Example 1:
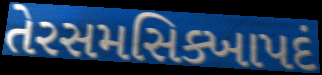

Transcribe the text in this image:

તેરસમસિક્ખાપદં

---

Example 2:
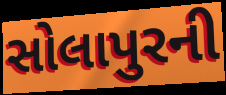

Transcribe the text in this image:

સોલાપુરની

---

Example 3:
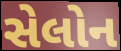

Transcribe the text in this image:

સેલોન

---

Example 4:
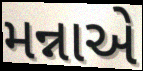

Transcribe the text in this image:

મન્નાએ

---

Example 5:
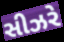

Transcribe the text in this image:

સીઝરે